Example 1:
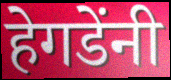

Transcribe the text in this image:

हेगडेंनी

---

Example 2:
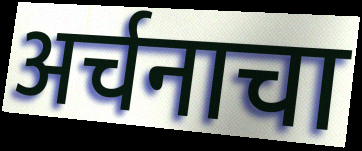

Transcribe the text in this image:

अर्चनाचा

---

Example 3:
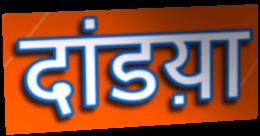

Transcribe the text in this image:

दांडय़ा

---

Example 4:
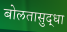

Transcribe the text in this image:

बोलतासुद्धा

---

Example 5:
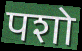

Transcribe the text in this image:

पशो